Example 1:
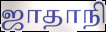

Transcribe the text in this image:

ஜாதாநி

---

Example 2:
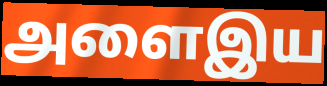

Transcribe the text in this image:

அளைஇய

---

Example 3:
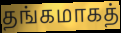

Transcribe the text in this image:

தங்கமாகத்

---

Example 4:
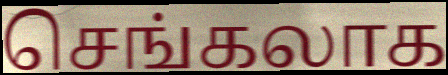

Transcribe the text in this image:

செங்கலாக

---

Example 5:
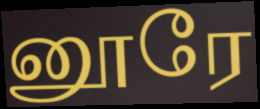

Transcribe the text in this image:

னூரே